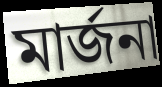
মার্জনা